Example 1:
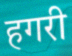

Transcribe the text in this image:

हगरी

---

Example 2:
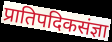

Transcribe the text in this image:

प्रातिपदिकसंज्ञा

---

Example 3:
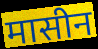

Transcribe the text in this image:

मासीन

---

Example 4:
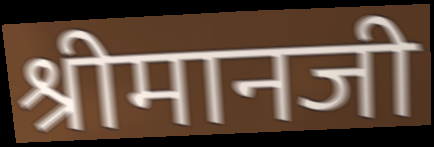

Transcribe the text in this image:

श्रीमानजी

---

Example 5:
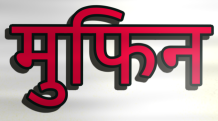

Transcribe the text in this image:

मुफिन